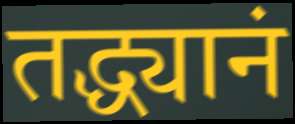
तद्ध्यानं